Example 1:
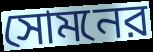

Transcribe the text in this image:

সোমনের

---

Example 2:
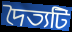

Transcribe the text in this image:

দৈত্যটি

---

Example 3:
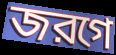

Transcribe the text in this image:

জরগে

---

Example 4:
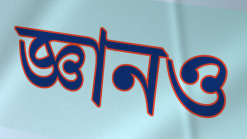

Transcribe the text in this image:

জ্ঞানও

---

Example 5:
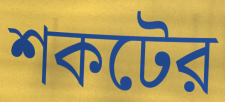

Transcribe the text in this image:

শকটের